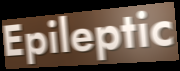
Epileptic